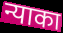
न्याका